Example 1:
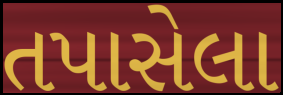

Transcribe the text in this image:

તપાસેલા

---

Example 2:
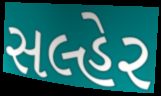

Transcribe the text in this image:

સલ્હેર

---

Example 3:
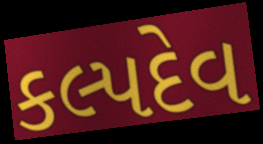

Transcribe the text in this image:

કલ્પદેવ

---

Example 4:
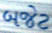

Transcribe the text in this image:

બજેટ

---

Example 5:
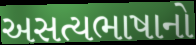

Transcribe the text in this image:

અસત્યભાષાનો